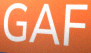
GAF